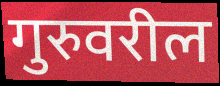
गुरुवरील